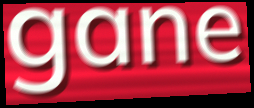
gane